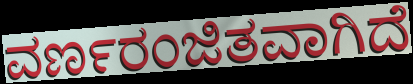
ವರ್ಣರಂಜಿತವಾಗಿದೆ